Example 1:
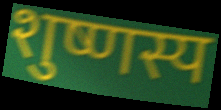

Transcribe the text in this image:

शुष्णस्य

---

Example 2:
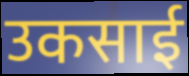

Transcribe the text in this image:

उकसाई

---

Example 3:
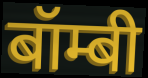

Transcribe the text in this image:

बॉम्बी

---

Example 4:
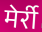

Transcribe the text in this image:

मेर्री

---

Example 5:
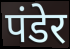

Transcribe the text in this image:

पंडेर